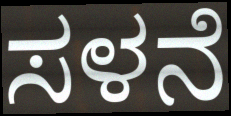
ಸಳನೆ